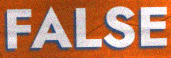
FALSE